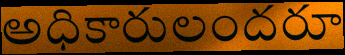
అధికారులందరూ